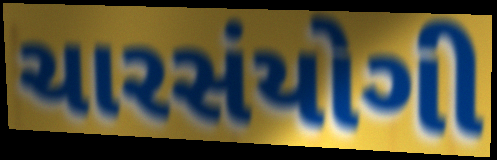
ચારસંયોગી